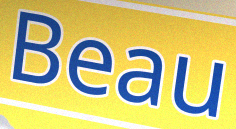
Beau